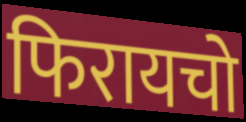
फिरायचो